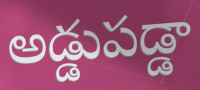
అడ్డుపడ్డా